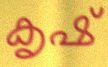
കൃഷ്